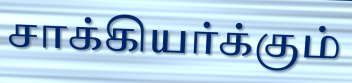
சாக்கியர்க்கும்